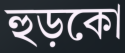
হুড়কো